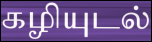
கழியுடல்